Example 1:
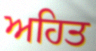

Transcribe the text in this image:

ਅਹਿਤ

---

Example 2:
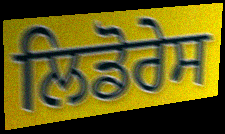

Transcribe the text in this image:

ਲਿਡੋਰੇਸ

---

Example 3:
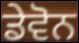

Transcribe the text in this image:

ਡੇਵੋਨ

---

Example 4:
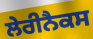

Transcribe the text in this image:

ਲੇਰੀਨੈਕਸ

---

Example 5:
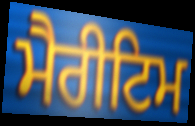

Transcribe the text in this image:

ਮੈਰੀਟਿਮ